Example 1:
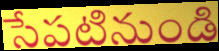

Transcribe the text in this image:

సేపటినుండి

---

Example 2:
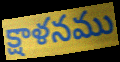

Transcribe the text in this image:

క్షాళనము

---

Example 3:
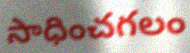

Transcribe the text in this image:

సాధించగలం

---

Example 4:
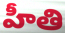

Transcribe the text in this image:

హీతి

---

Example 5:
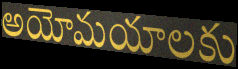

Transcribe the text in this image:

అయోమయాలకు